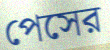
পেসের